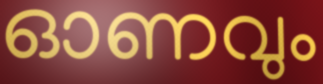
ഓണവും